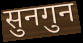
सुनगुन